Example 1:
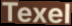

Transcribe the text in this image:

Texel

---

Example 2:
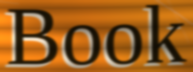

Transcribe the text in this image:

Book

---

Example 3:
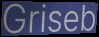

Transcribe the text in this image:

Griseb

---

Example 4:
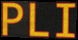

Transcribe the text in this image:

PLI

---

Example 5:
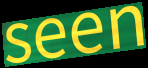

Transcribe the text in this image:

seen